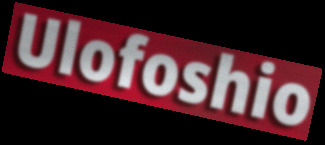
Ulofoshio